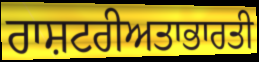
ਰਾਸ਼ਟਰੀਅਤਾਭਾਰਤੀ